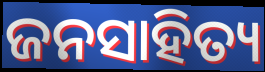
ଜନସାହିତ୍ୟ